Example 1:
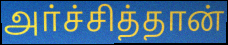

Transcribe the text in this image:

அர்ச்சித்தான்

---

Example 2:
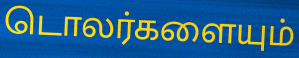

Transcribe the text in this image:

டொலர்களையும்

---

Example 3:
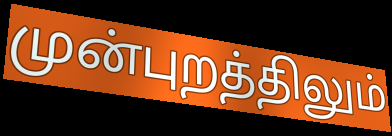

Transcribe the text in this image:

முன்புறத்திலும்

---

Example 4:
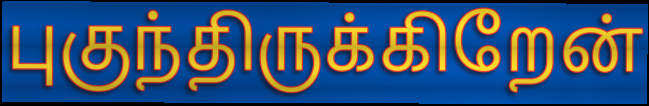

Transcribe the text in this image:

புகுந்திருக்கிறேன்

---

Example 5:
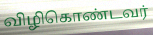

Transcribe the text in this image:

விழிகொண்டவர்